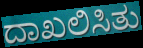
ದಾಖಲಿಸಿತು